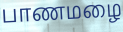
பாணமழை